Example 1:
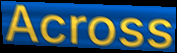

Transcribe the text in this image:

Across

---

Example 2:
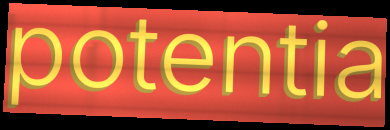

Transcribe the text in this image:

potentia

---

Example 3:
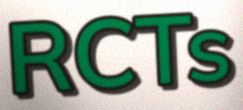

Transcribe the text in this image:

RCTs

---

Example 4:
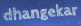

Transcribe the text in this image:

dhangekar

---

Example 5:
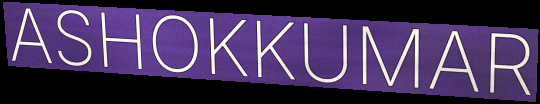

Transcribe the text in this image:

ASHOKKUMAR